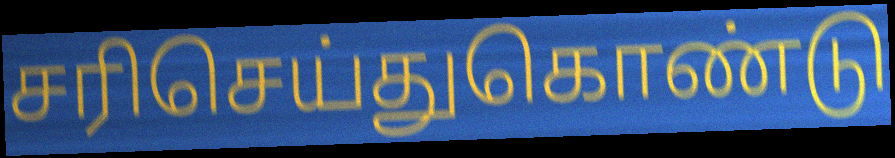
சரிசெய்துகொண்டு